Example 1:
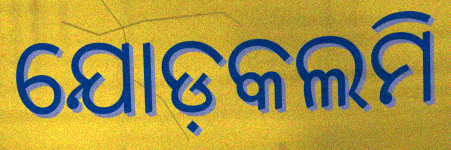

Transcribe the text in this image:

ଯୋଡ଼କଲମି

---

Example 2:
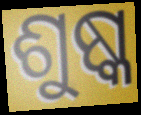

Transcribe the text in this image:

ଶୁଷ୍କ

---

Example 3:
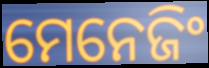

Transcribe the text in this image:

ମେନେଜିଂ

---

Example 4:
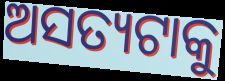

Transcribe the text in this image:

ଅସତ୍ୟଟାକୁ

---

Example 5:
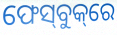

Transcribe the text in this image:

ଫେସ୍‌ବୁକ୍‌ରେ